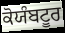
ਕੋਯੰਬਟੂਰ